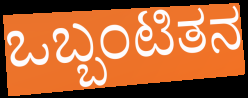
ಒಬ್ಬಂಟಿತನ